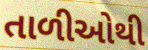
તાળીઓથી